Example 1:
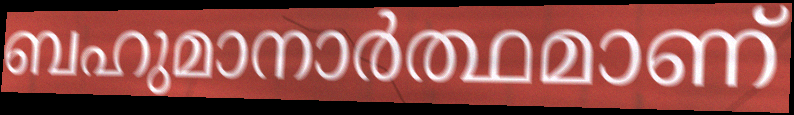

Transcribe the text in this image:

ബഹുമാനാർത്ഥമാണ്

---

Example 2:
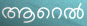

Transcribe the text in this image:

ആറെൽ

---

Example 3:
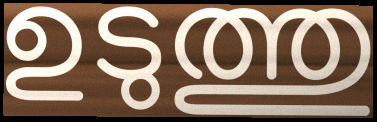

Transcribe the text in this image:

ഉടുത്തു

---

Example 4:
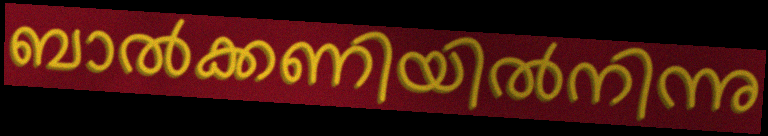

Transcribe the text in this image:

ബാൽക്കണിയിൽനിന്നു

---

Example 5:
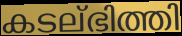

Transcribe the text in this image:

കടല്ഭിത്തി